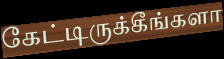
கேட்டிருக்கீங்களா